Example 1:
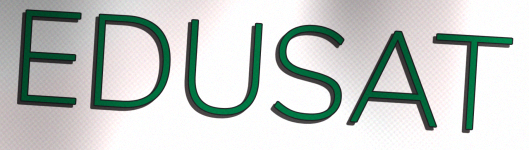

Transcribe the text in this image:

EDUSAT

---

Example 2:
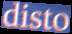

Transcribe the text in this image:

disto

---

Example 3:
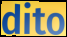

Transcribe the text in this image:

dito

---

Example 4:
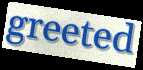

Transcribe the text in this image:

greeted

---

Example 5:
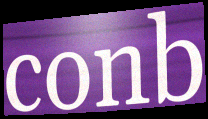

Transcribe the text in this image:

conb